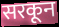
सरकून